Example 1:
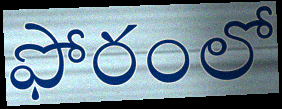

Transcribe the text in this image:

ఫోరంలో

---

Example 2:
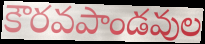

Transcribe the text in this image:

కౌరవపాండవుల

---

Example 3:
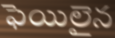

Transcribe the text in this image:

ఫెయిలైన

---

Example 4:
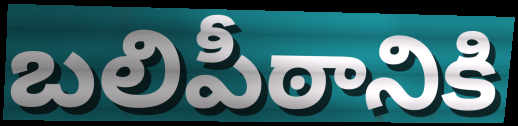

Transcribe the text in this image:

బలిపీఠానికి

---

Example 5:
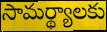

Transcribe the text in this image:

సామర్థ్యాలకు